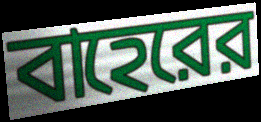
বাহেরের